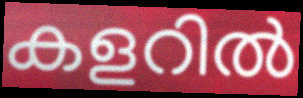
കളറിൽ